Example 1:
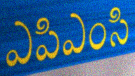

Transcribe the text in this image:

ఎపిఎంసి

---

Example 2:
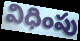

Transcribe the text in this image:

విధింపు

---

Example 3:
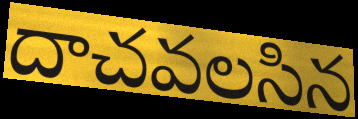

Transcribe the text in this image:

దాచవలసిన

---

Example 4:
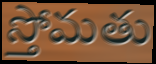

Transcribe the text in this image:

స్తోమతు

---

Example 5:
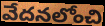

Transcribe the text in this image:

వేదనలోంచి